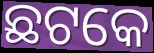
ଛଟକେ